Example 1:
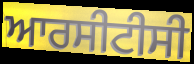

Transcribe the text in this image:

ਆਰਸੀਟੀਸੀ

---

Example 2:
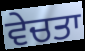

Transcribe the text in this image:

ਵੇਚਤਾ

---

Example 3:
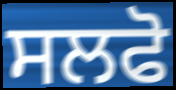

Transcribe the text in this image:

ਸਲਫੋ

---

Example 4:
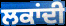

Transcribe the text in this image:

ਲਕਾਂਦੀ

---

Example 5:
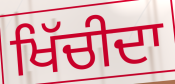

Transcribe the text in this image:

ਖਿੱਚੀਦਾ